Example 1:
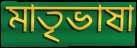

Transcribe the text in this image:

মাতৃভাষা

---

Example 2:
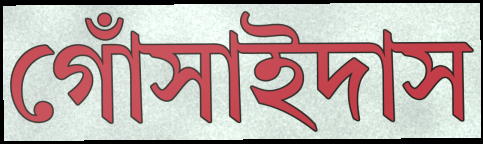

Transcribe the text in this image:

গোঁসাইদাস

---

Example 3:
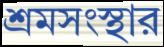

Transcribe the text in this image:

শ্রমসংস্থার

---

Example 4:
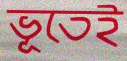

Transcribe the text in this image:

ভূতেই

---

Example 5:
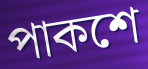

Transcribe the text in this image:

পাকশে